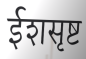
ईशसृष्ट